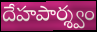
దేహపార్శ్వం